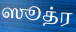
ஸூத்ர